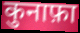
कुनाफ़ा